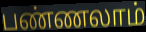
பண்ணலாம்